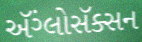
ઍંગ્લોસૅક્સન